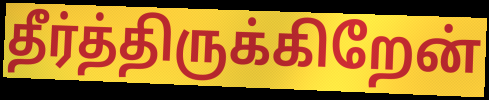
தீர்த்திருக்கிறேன்